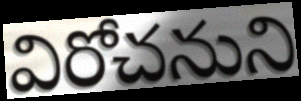
విరోచనుని